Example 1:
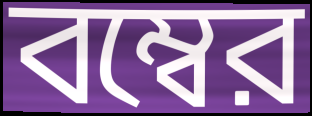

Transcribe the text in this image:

বম্বের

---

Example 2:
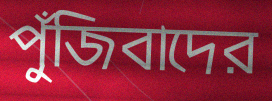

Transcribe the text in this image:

পুঁজিবাদের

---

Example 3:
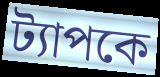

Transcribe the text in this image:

ট্যাপকে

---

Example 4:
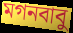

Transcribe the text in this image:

মগনবাবু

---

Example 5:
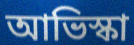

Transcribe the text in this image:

আভিস্কা